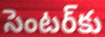
సెంటర్‌కు